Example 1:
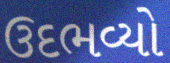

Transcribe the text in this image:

ઉદભવ્યો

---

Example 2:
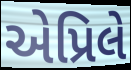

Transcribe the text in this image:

એપ્રિલે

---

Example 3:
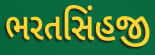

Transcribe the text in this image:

ભરતસિંહજી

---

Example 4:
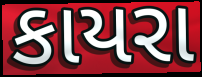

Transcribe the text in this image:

કાયરા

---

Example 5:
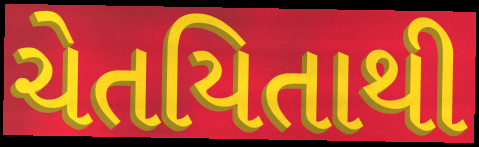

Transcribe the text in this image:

ચેતયિતાથી